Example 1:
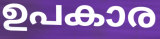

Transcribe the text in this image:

ഉപകാര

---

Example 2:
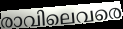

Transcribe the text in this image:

രാവിലെവരെ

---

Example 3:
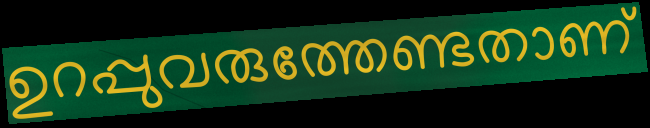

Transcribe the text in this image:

ഉറപ്പുവരുത്തേണ്ടതാണ്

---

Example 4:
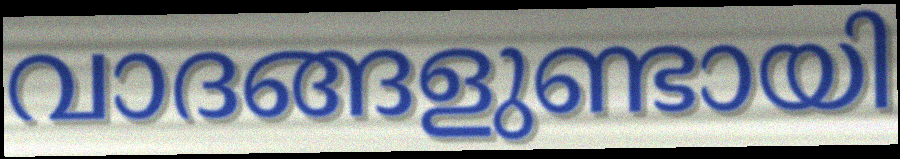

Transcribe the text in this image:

വാദങ്ങളുണ്ടായി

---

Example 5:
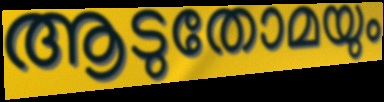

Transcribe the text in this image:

ആടുതോമയും